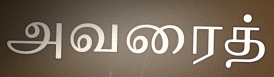
அவரைத்